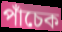
পাঁচেক